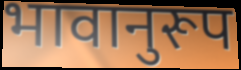
भावानुरूप